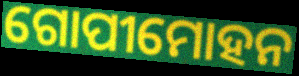
ଗୋପୀମୋହନ